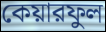
কেয়ারফুল